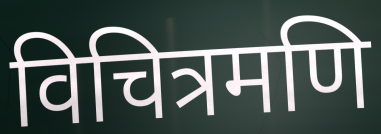
विचित्रमणि